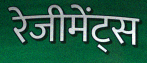
रेजीमेंट्स